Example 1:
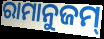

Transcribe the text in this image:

ରାମାନୁଜମ୍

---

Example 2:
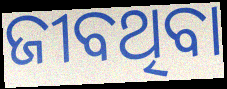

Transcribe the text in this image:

ଜୀବଥିବା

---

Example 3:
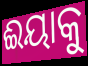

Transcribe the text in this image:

ଈୟାକୁ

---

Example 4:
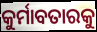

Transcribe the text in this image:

କୁର୍ମାବତାରକୁ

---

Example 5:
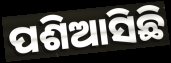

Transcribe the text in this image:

ପଶିଆସିଛି